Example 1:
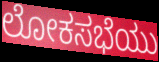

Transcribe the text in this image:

ಲೋಕಸಭೆಯು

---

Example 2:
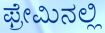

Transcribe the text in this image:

ಫ್ರೇಮಿನಲ್ಲಿ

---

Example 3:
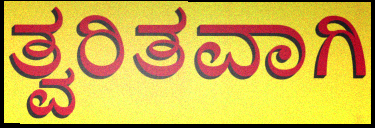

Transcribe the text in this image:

ತ್ವರಿತವಾಗಿ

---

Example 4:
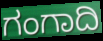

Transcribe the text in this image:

ಗಂಗಾದಿ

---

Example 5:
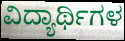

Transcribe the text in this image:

ವಿದ್ಯಾರ್ಥಿಗಳ